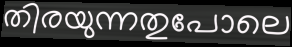
തിരയുന്നതുപോലെ